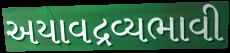
અયાવદ્રવ્યભાવી